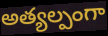
అత్యల్పంగా